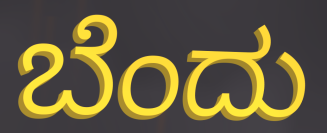
ಬೆಂದು